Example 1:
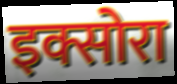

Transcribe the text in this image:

इक्सोरा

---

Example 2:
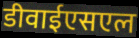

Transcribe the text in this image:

डीवाईएसएल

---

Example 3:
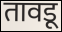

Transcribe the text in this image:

तावडू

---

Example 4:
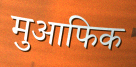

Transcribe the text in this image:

मुआफिक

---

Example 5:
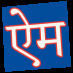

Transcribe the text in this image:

ऐम